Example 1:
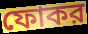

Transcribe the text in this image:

ফোকর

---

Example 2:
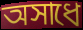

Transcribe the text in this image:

অসাধে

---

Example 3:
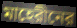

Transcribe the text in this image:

মাহেরীনের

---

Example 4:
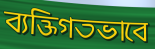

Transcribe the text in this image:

ব্যক্তিগতভাবে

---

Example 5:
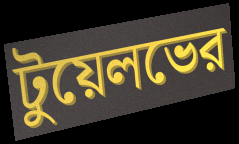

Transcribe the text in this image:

টুয়েলভের